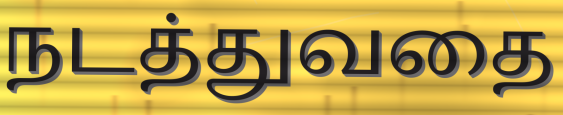
நடத்துவதை